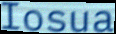
Iosua